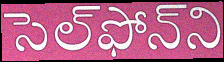
సెల్‌ఫోన్‌ని